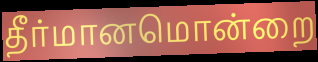
தீர்மானமொன்றை